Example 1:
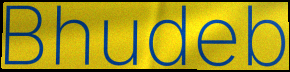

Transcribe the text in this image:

Bhudeb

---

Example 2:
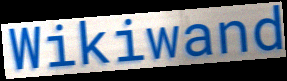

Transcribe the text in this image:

Wikiwand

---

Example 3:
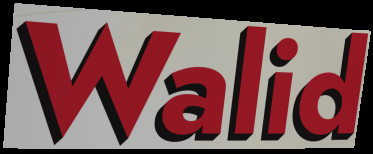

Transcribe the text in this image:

Walid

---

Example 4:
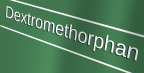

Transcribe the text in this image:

Dextromethorphan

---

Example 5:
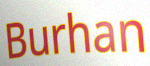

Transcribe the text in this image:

Burhan